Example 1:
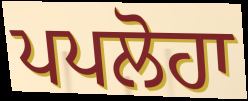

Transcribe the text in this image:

ਪਪਲੋਹਾ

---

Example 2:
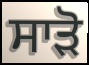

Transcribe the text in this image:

ਸਾੜੋ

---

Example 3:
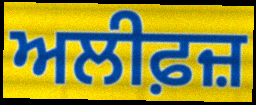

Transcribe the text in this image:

ਅਲੀਫ਼ਜ਼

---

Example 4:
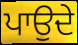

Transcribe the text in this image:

ਪਾਉਦੇ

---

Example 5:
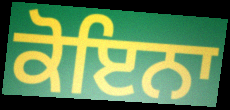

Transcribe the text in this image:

ਕੋਇਨਾ